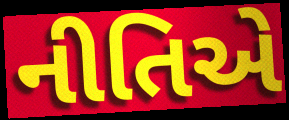
નીતિએ